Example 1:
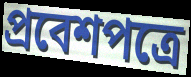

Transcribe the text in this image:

প্রবেশপত্রে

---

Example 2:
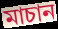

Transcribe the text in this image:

মাচান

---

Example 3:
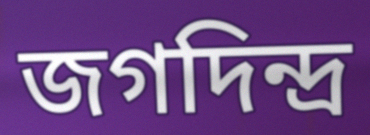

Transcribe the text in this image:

জগদিন্দ্র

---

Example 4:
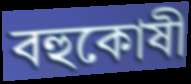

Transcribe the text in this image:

বহুকোষী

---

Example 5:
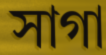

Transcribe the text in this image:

সাগা